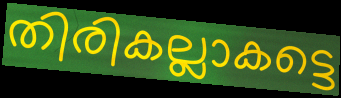
തിരികല്ലാകട്ടെ